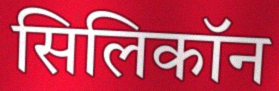
सिलिकॉन